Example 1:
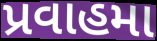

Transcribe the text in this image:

પ્રવાહમા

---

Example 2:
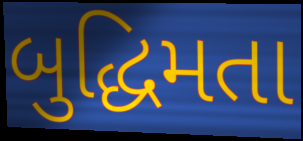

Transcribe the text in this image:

બુદ્ધિમતા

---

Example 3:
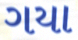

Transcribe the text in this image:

ગયા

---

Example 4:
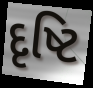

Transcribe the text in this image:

દૃષ્ટિ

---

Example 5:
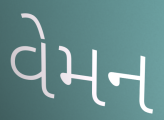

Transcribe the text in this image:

વેમન